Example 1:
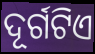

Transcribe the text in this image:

ଦୂର୍ଗଟିଏ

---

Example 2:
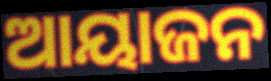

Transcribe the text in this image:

ଆୟାଜନ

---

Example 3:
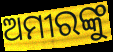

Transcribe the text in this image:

ଅମୀରଙ୍କୁ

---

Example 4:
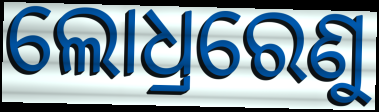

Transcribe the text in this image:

ଲୋଧ୍ରରେଣୁ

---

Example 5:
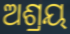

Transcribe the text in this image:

ଅଶ୍ରୟ